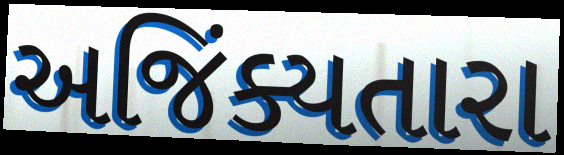
અજિંક્યતારા